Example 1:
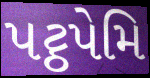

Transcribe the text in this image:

પટ્ઠપેમિ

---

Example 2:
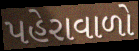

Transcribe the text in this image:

પહેરાવાળો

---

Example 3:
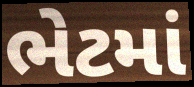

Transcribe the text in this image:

ભેટમાં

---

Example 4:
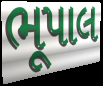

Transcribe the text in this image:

ભૂપાલ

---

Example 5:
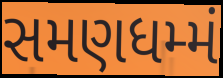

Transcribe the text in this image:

સમણધમ્મં